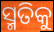
ସ୍ମତିକୁ